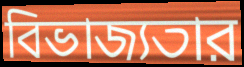
বিভাজ্যতার